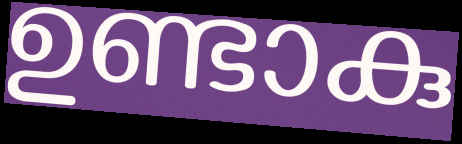
ഉണ്ടാകു